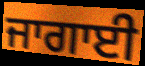
ਜਾਗਾਈ